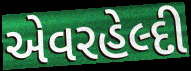
એવરહેલ્દી